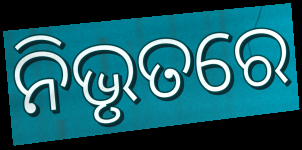
ନିଭୃତରେ